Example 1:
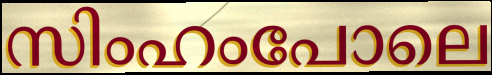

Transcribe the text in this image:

സിംഹംപോലെ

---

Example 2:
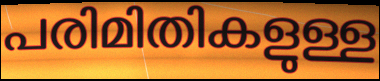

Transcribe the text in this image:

പരിമിതികളുള്ള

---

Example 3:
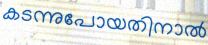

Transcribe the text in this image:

കടന്നുപോയതിനാൽ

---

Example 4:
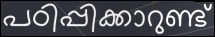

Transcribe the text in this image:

പഠിപ്പിക്കാറുണ്ട്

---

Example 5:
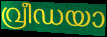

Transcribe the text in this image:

വ്രീഡയാ